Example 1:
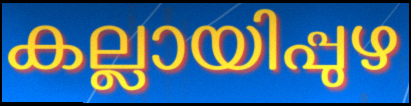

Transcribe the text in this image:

കല്ലായിപ്പുഴ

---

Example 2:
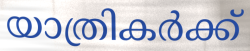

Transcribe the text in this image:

യാത്രികർക്ക്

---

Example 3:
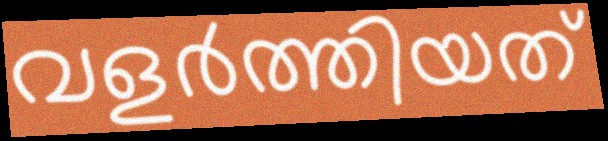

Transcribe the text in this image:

വളർത്തിയത്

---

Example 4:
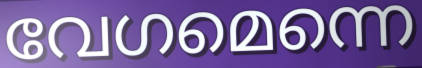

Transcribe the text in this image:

വേഗമെന്നെ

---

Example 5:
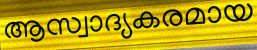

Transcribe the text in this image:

ആസ്വാദ്യകരമായ